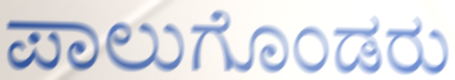
ಪಾಲುಗೊಂಡರು